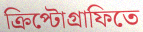
ক্রিপ্টোগ্রাফিতে